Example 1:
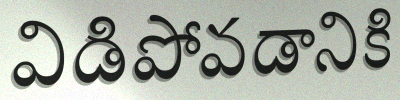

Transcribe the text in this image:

విడిపోవడానికి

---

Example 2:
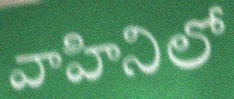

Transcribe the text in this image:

వాహినిలో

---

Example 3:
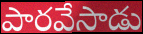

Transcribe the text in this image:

పారవేసాడు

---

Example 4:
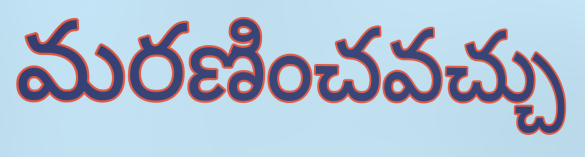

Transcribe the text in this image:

మరణించవచ్చు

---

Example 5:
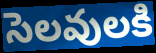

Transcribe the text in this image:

సెలవులకి